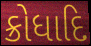
ક્રોધાદિ